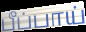
பீப்பாய்